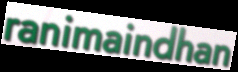
ranimaindhan